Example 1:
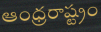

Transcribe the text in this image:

ఆంధ్రరాష్ట్రం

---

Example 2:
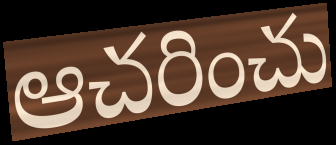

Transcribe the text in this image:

ఆచరించు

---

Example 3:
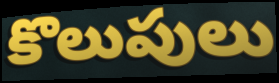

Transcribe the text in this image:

కొలుపులు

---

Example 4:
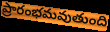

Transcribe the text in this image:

ప్రారంభమవుతుంది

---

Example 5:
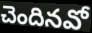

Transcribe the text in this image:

చెందినవో